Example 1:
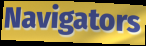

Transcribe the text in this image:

Navigators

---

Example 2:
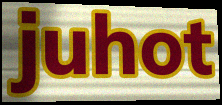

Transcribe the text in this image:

juhot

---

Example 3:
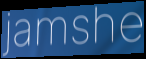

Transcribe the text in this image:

jamshe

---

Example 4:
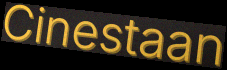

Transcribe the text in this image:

Cinestaan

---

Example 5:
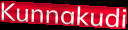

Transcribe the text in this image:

Kunnakudi